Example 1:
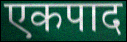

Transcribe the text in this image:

एकपाद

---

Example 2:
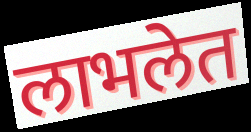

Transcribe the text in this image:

लाभलेत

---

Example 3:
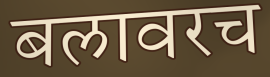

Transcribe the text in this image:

बलावरच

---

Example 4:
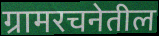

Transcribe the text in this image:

ग्रामरचनेतील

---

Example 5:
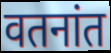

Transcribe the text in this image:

वतनांत